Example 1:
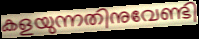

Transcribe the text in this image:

കളയുന്നതിനുവേണ്ടി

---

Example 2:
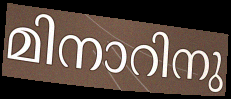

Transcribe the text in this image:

മിനാറിനു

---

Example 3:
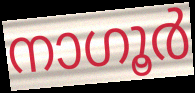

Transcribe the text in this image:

നാഗൂർ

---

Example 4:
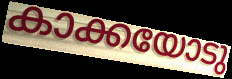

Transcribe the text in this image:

കാക്കയോടു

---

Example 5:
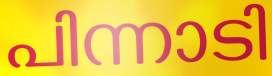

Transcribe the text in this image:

പിന്നാടി